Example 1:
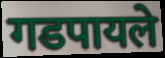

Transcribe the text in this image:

गडपायले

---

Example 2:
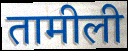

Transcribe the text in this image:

तामीली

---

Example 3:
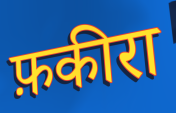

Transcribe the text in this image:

फ़कीरा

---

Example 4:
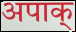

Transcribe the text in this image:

अपाक्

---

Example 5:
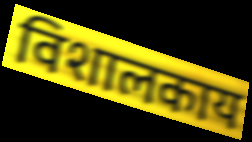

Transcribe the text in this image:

विशालकाय